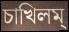
চাখিলম্